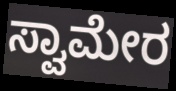
ಸ್ವಾಮೇರ